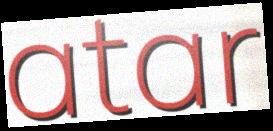
atar